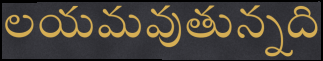
లయమవుతున్నది